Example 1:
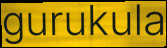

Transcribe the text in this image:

gurukula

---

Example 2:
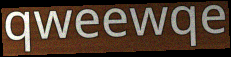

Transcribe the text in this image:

qweewqe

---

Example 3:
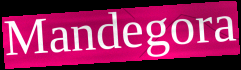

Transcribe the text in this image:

Mandegora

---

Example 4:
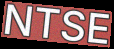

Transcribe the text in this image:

NTSE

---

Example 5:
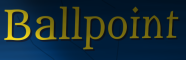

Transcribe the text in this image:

Ballpoint